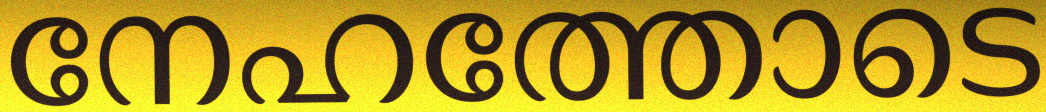
നേഹത്തോടെ